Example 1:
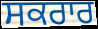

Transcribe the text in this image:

ਸਕਰਾਰ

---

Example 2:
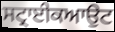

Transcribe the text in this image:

ਸਟ੍ਰਾਈਕਆਉਟ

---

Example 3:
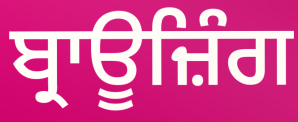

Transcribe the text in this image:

ਬ੍ਰਾਊਜ਼ਿੰਗ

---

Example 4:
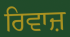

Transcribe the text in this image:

ਰਿਵਾਜ਼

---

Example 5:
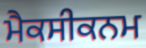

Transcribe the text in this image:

ਮੈਕਸੀਕਨਮ